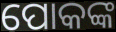
ପୋକଙ୍କ